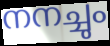
നനച്ചും